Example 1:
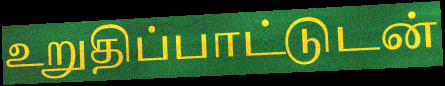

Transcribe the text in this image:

உறுதிப்பாட்டுடன்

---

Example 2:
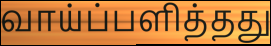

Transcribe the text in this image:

வாய்ப்பளித்தது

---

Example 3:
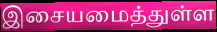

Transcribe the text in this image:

இசையமைத்துள்ள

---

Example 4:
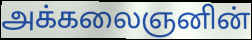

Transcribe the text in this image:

அக்கலைஞனின்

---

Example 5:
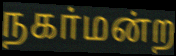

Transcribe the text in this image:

நகர்மன்ற